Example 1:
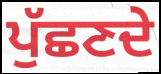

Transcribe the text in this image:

ਪੁੱਛਣਦੇ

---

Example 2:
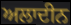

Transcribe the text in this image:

ਅਲਾਦੀਨ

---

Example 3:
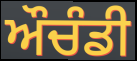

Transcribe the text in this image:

ਔਚੰਡੀ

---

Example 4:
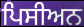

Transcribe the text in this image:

ਪਿਸੀਅਨ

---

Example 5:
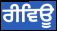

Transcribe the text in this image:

ਰੀਵਿਊ